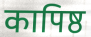
कापिष्ठ